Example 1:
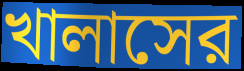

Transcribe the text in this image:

খালাসের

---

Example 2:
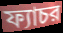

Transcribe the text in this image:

ফ্যাচর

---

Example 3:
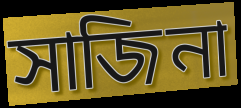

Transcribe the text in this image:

সাজিনা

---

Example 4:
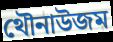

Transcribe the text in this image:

থৌনাউজম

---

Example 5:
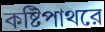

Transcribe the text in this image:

কষ্টিপাথরে